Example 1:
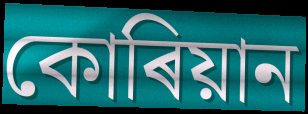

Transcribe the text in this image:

কোৰিয়ান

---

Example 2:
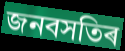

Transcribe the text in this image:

জনবসতিৰ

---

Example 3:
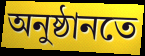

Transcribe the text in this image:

অনুষ্ঠানতে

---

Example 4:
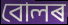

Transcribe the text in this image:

বোলৰ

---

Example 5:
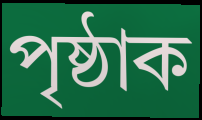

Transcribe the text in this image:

পৃষ্ঠাক